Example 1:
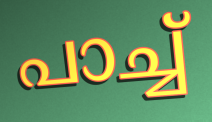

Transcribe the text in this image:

പാച്ച്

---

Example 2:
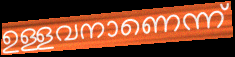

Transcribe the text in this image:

ഉള്ളവനാണെന്ന്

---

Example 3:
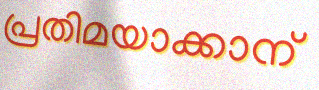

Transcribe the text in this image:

പ്രതിമയാക്കാന്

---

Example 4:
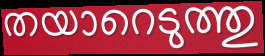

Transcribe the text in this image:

തയാറെടുത്തു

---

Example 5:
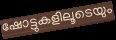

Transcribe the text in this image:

ഷോട്ടുകളിലൂടെയും